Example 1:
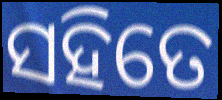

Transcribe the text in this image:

ସହିତେ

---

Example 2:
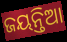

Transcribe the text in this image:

ଜୟନ୍ତିଆ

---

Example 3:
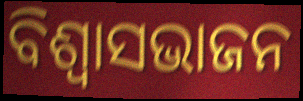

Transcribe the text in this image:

ବିଶ୍ୱାସଭାଜନ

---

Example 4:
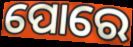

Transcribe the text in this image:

ପୋରେ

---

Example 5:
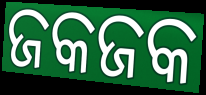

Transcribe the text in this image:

ଜକଜକ